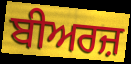
ਬੀਅਰਜ਼